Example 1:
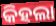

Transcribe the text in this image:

କିହଲା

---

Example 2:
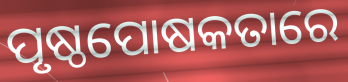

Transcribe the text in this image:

ପୃଷ୍ଠପୋଷକତାରେ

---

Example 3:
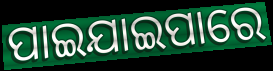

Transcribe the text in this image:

ପାଇଯାଇପାରେ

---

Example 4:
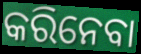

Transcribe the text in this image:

କରିନେବା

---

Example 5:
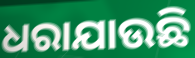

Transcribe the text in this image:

ଧରାଯାଉଛି